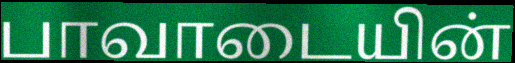
பாவாடையின்